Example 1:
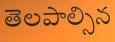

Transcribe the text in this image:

తెలపాల్సిన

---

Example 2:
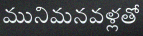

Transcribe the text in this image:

మునిమనవళ్లతో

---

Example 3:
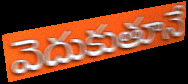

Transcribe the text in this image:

వెదుకుతూనే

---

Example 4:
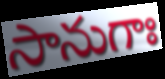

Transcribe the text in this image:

సానుగాః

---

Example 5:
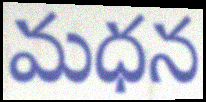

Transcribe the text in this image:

మధన